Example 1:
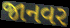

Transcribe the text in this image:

જાનવર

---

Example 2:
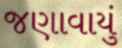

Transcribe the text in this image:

જણાવાયું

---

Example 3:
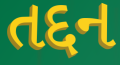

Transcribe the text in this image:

તદ્દન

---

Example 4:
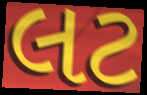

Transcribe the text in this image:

લટ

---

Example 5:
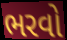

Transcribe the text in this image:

ભરવો